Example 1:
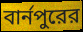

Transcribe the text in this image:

বার্নপুরের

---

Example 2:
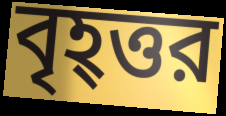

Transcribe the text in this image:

বৃহ্ত্তর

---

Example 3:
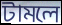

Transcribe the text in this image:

টামলে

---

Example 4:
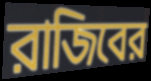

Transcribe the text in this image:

রাজিবের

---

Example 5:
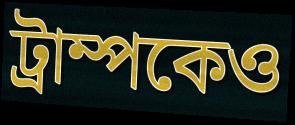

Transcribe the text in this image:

ট্রাম্পকেও